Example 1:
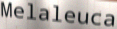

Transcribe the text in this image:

Melaleuca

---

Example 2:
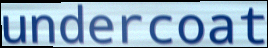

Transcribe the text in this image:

undercoat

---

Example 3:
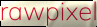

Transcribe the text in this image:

rawpixel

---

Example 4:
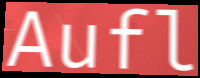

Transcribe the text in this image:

Aufl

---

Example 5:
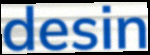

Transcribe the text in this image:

desin